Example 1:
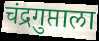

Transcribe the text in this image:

चंद्रगुप्ताला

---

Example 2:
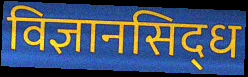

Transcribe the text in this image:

विज्ञानसिद्ध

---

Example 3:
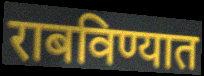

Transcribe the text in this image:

राबविण्‍यात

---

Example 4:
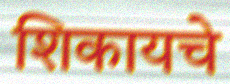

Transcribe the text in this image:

शिकायचे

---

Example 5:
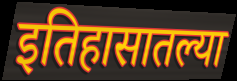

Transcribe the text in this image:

इतिहासातल्या